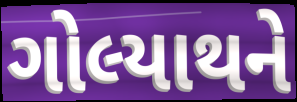
ગોલ્યાથને